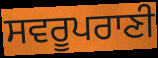
ਸਵਰੂਪਰਾਣੀ